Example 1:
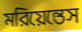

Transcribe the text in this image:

মরিয়েন্তেস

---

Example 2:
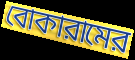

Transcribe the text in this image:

বোকারামের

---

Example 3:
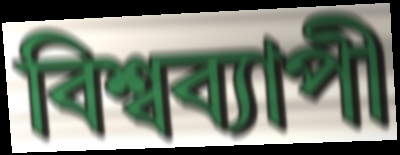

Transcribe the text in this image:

বিশ্বব্যাপী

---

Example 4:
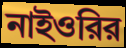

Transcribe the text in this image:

নাইওরির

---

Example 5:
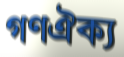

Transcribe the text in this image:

গণঐক্য